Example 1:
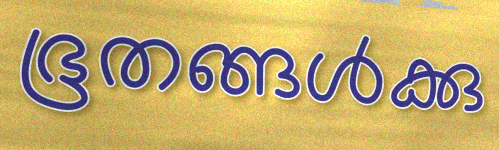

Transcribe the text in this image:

ഭൂതങ്ങൾക്കു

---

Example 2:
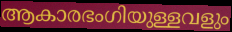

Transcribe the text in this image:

ആകാരഭംഗിയുള്ളവളും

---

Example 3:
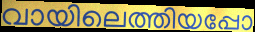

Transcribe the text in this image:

വായിലെത്തിയപ്പോ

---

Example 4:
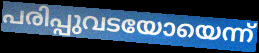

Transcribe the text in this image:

പരിപ്പുവടയോയെന്ന്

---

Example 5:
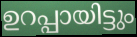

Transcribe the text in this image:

ഉറപ്പായിട്ടും